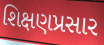
શિક્ષણપ્રસાર